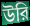
উরি